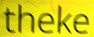
theke